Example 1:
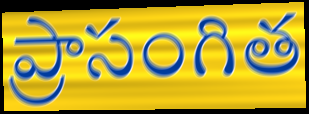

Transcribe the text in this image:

ప్రాసంగిత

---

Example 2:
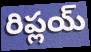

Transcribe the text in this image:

రిప్లయ్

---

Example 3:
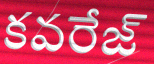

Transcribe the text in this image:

కవరేజ్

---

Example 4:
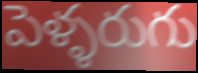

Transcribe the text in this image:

పెళ్ళరుగు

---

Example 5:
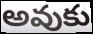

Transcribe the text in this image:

అవుకు